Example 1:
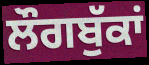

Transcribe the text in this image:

ਲੌਗਬੁੱਕਾਂ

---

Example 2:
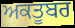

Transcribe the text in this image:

ਅਕਤੂਬਰ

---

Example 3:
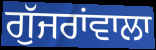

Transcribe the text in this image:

ਗੁੱਜਰਾਂਵਾਲਾ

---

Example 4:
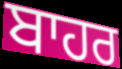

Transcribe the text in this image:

ਬਾਹਰ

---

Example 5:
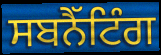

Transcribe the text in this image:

ਸਬਨੈੱਟਿੰਗ